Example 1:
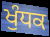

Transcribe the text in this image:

ਖੁੰਧਕ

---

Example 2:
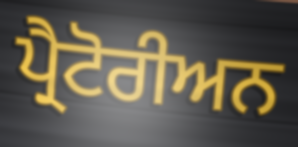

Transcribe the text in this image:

ਪ੍ਰੈਟੋਰੀਅਨ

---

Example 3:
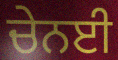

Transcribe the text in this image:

ਚੇਨਈ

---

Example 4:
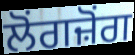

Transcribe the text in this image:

ਲੋਂਗਜ਼ੋਂਗ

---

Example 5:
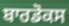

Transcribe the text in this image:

ਬਾਰਡੋਕਸ